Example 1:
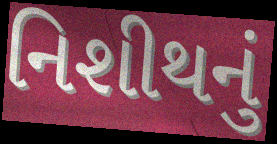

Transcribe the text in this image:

નિશીથનું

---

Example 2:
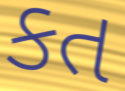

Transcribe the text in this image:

કત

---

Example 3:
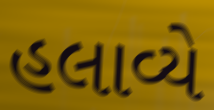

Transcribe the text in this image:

હલાવ્યે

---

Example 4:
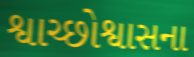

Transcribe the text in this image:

શ્વાચ્છોશ્વાસના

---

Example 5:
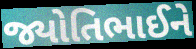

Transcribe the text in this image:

જ્યોતિભાઈને